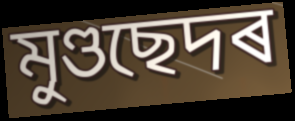
মুণ্ডছেদৰ